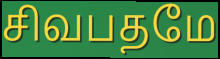
சிவபதமே